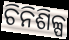
ଚିନିଶିଳ୍ପ